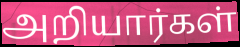
அறியார்கள்